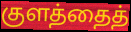
குளத்தைத்